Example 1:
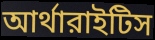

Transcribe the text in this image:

আর্থারাইটিস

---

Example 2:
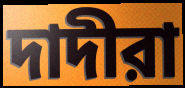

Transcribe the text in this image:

দাদীরা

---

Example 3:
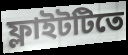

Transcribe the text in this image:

ফ্লাইটটিতে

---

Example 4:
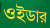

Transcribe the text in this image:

ওইডার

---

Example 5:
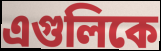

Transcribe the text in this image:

এগুলিকে